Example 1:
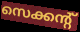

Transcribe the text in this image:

സെക്കന്റ്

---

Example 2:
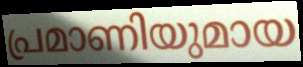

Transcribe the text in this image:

പ്രമാണിയുമായ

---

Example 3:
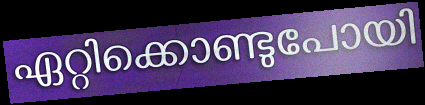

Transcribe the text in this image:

ഏറ്റിക്കൊണ്ടുപോയി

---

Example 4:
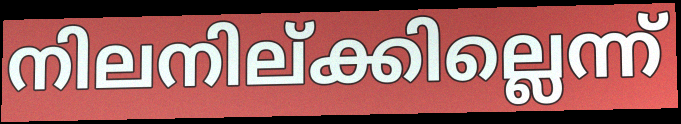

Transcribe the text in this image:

നിലനില്ക്കില്ലെന്ന്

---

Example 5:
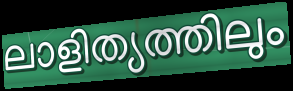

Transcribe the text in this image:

ലാളിത്യത്തിലും